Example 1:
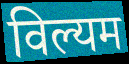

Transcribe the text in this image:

विल्यम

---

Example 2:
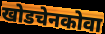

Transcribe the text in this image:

खोडचेनकोवा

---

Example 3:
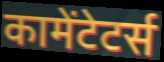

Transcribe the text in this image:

कामेंटेटर्स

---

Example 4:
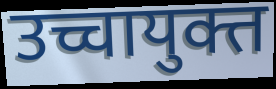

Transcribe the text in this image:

उच्चायुक्त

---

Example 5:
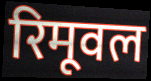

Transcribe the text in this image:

रिमूवल